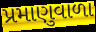
પ્રમાણુવાળા